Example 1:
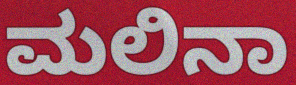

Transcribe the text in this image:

ಮಲಿನಾ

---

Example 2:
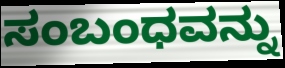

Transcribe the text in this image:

ಸಂಬಂಧವನ್ನು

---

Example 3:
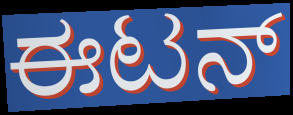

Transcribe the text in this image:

ಈಟನ್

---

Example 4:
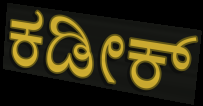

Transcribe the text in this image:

ಕಡೀಕ್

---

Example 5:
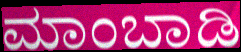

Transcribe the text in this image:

ಮಾಂಬಾಡಿ